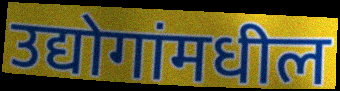
उद्योगांमधील